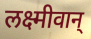
लक्ष्मीवान्